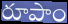
రూపాం